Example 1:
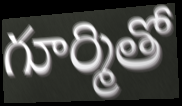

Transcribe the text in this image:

గూర్మితో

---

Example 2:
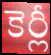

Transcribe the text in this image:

కెర్లీ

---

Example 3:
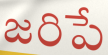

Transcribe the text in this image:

జరిపే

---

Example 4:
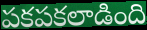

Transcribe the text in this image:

పకపకలాడింది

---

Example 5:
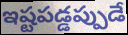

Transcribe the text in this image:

ఇష్టపడ్డప్పుడే